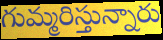
గుమ్మరిస్తున్నారు